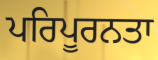
ਪਰਿਪੂਰਨਤਾ